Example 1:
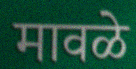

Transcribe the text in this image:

मावळे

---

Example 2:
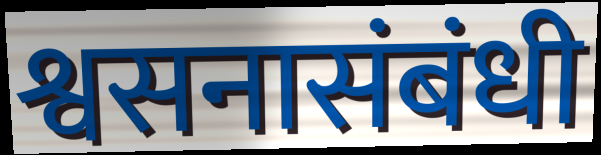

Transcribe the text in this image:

श्वसनासंबंधी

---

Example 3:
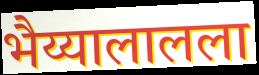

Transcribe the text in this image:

भैय्यालालला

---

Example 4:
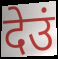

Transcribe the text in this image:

देउं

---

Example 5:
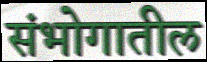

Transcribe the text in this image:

संभोगातील